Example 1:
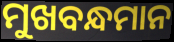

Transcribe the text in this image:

ମୁଖବନ୍ଧମାନ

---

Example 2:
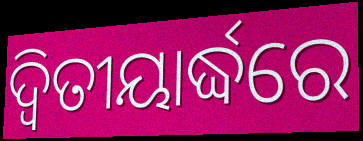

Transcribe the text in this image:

ଦ୍ଵିତୀୟାର୍ଦ୍ଧରେ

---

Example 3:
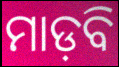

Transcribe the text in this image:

ମାଡ଼ବି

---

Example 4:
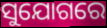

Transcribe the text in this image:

ସୁଯୋଗରେ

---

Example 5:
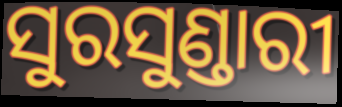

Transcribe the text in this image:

ସୁରସୁଣ୍ଡାରୀ